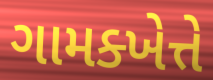
ગામક્ખેત્તે